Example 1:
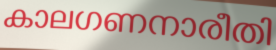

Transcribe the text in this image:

കാലഗണനാരീതി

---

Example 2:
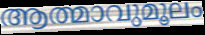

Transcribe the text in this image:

ആത്മാവുമൂലം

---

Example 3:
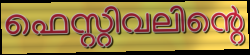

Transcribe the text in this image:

ഫെസ്റ്റിവലിന്റെ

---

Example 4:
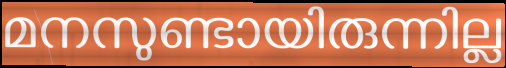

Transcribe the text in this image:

മനസുണ്ടായിരുന്നില്ല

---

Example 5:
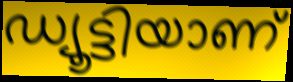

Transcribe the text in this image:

ഡ്യൂട്ടിയാണ്